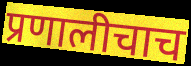
प्रणालीचाच